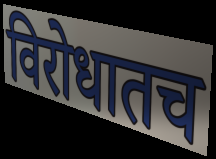
विरोधातच